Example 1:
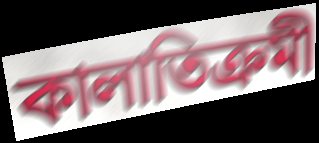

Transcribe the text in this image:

কালাতিক্রমী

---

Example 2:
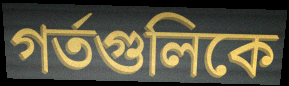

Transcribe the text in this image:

গর্তগুলিকে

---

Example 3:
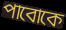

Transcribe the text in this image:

পাবোকে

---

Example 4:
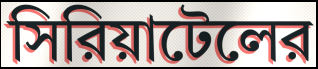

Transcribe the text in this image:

সিরিয়াটেলের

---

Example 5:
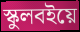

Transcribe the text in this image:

স্কুলবইয়ে